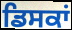
ਡਿਸਕਾਂ